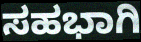
ಸಹಭಾಗಿ